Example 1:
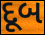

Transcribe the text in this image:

દૂબ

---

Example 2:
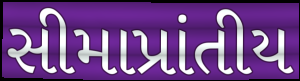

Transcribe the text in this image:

સીમાપ્રાંતીય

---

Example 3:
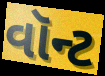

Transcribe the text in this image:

વૉન્ટ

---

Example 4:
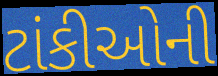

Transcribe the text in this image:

ટાંકીઓની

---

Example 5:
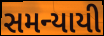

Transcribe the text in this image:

સમન્યાયી